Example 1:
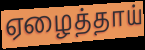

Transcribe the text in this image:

ஏழைத்தாய்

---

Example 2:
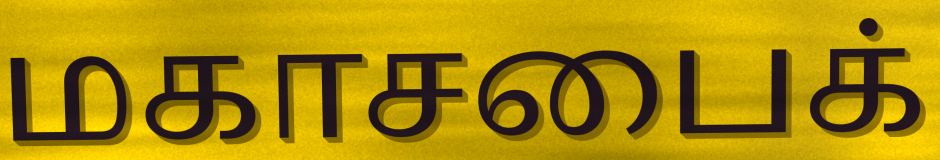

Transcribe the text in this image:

மகாசபைக்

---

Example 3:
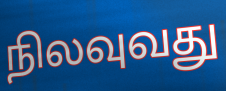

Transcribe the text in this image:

நிலவுவது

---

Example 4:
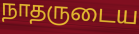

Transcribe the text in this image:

நாதருடைய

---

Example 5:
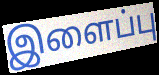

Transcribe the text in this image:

இளைப்பு